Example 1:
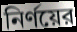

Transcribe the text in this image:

নির্ণয়ের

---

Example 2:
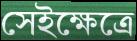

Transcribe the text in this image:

সেইক্ষেত্রে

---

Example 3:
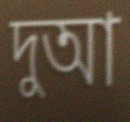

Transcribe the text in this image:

দুআ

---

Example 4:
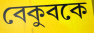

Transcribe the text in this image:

বেকুবকে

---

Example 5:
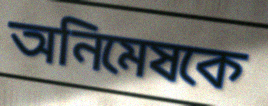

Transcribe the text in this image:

অনিমেষকে